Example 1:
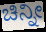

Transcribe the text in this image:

ಚಿನ್ನೀ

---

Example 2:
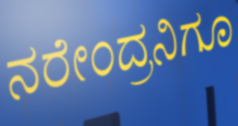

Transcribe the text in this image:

ನರೇಂದ್ರನಿಗೂ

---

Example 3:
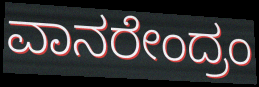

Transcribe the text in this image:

ವಾನರೇಂದ್ರಂ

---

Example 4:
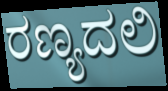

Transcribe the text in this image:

ರಣ್ಯದಲಿ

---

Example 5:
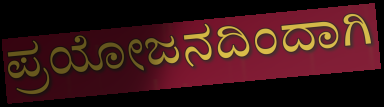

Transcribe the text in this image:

ಪ್ರಯೋಜನದಿಂದಾಗಿ